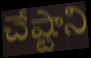
చేష్టాని